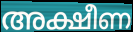
അക്ഷീണ